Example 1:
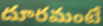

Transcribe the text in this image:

దూరమంటే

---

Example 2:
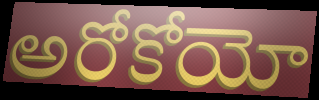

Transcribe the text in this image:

అరోకోయో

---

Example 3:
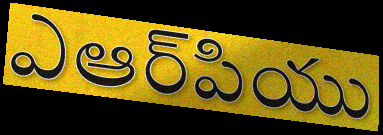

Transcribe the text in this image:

ఎఆర్‌పియు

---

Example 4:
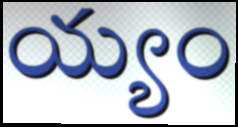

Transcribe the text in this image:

య్యం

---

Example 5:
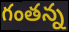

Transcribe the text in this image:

గంతన్న